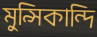
মুন্সিকান্দি